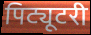
पिट्यूटरी